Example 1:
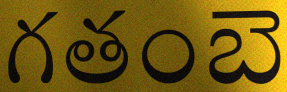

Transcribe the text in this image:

గతంబె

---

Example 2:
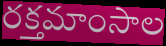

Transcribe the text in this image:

రక్తమాంసాల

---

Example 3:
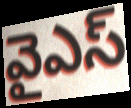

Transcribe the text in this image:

వైఎస్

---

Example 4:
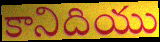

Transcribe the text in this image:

కానిదియు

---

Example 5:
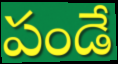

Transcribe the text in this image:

పండే